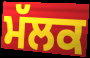
ਮੱਲਕ